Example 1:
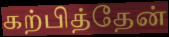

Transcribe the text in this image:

கற்பித்தேன்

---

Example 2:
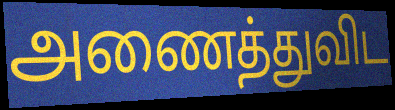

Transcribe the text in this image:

அணைத்துவிட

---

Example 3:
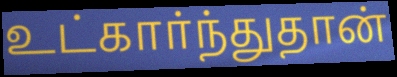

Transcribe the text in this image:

உட்கார்ந்துதான்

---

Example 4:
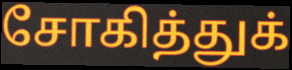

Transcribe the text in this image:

சோகித்துக்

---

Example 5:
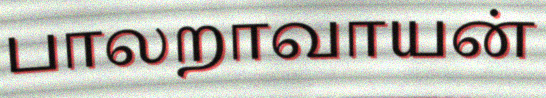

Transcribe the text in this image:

பாலறாவாயன்